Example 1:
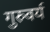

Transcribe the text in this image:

गुरुवर्य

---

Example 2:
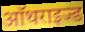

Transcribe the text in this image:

ऑथराइज्ड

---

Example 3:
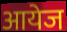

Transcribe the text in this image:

आयेज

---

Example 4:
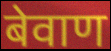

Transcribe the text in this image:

बेवाण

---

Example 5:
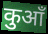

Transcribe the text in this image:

कुआँ